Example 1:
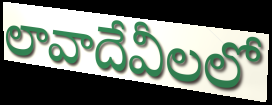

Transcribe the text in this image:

లావాదేవీలలో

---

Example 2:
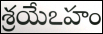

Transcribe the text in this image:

శ్రయేఽహం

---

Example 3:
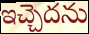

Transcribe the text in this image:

ఇచ్చెదను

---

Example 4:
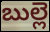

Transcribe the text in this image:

బుల్లె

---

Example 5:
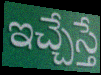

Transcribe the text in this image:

ఇచ్చేస్తే